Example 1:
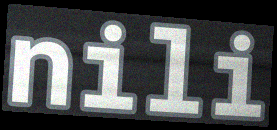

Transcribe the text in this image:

nili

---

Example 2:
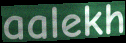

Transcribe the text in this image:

aalekh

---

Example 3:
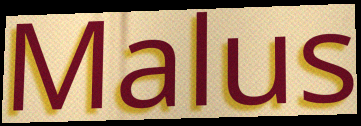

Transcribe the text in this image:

Malus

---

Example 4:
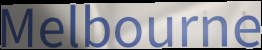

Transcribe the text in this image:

Melbourne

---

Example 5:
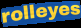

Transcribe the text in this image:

rolleyes